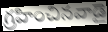
గ్రహించినవాడై